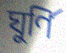
ঘুর্ণি